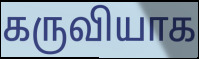
கருவியாக